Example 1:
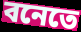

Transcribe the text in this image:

বনেতে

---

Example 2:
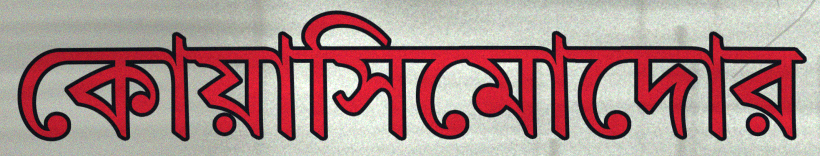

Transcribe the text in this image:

কোয়াসিমোদোর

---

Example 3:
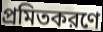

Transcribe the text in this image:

প্রমিতকরণে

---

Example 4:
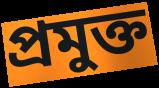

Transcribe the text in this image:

প্রমুক্ত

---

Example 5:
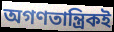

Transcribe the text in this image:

অগণতান্ত্রিকই